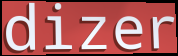
dizer